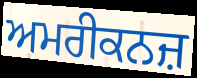
ਅਮਰੀਕਨਜ਼